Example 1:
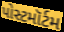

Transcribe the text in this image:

પોસ્ટમૉર્ટમ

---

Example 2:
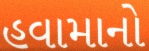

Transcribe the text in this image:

હવામાનો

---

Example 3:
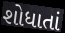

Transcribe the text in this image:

શોધાતાં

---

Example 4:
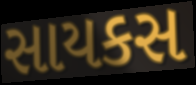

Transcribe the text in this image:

સાયકસ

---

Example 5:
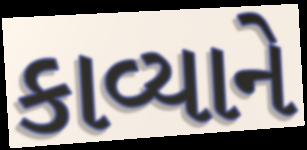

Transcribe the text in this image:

કાવ્યાને